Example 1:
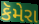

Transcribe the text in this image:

કૅમેરા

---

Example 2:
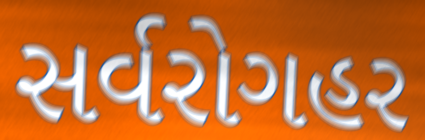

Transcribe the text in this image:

સર્વરોગહર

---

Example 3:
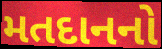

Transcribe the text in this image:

મતદાનનો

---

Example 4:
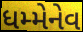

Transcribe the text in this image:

ધમ્મેનેવ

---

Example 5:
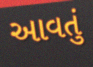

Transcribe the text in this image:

આવતું